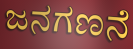
ಜನಗಣನೆ